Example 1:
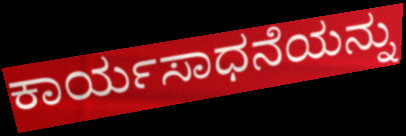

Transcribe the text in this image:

ಕಾರ್ಯಸಾಧನೆಯನ್ನು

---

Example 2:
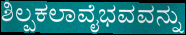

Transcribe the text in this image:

ಶಿಲ್ಪಕಲಾವೈಭವವನ್ನು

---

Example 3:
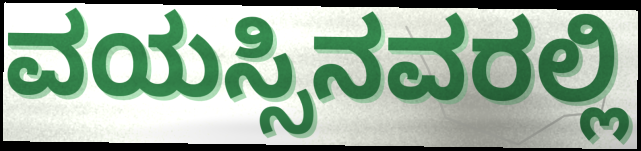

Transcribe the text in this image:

ವಯಸ್ಸಿನವರಲ್ಲಿ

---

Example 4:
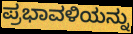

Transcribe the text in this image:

ಪ್ರಭಾವಳಿಯನ್ನು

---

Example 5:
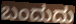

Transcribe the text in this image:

ಬಂದುದು